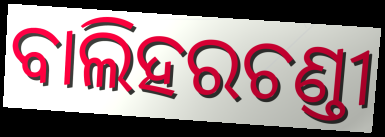
ବାଲିହରଚଣ୍ଡୀ